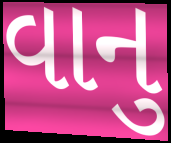
વાનુ